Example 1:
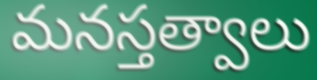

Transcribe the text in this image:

మనస్తత్వాలు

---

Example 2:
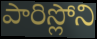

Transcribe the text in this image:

పారిస్లోని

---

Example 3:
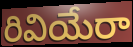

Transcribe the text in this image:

రివియేరా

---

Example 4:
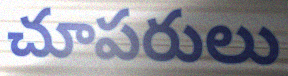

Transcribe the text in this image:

చూపరులు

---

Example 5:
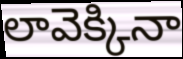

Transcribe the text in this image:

లావెక్కినా